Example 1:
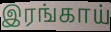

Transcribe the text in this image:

இரங்காய்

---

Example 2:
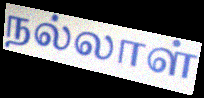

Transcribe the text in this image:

நல்லாள்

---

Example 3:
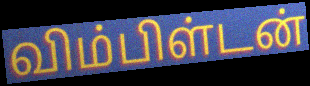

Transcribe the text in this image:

விம்பிள்டன்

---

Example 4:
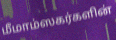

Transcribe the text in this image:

மீமாம்ஸகர்களின்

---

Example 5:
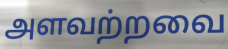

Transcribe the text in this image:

அளவற்றவை